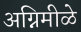
अग्निमीळे